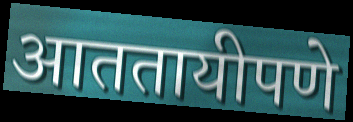
आततायीपणे